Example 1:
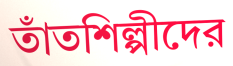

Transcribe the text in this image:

তাঁতশিল্পীদের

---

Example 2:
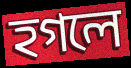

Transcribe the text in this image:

হগলে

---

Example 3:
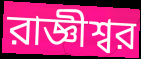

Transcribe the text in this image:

রাজ্ঞীশ্বর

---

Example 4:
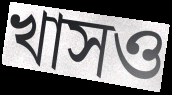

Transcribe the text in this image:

খাসও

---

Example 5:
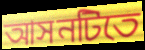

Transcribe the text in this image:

আসনটিতে